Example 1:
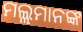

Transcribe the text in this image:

ମଲ୍ଲମାନଙ୍କ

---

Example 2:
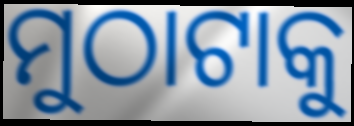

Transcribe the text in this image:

ମୁଠାଟାକୁ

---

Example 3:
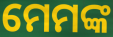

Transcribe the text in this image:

ମେମଙ୍କ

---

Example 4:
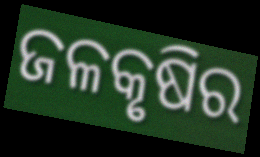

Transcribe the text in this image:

ଜଳକୃଷିର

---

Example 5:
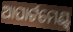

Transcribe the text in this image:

ଆପାର୍ଟମେଣ୍ଟ୍